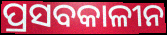
ପ୍ରସବକାଳୀନ